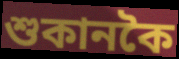
শুকানকৈ